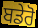
ਬਡੇਰੋ